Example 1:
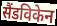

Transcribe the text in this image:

सैंडविकेन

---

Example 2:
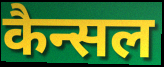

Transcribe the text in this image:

कैन्सल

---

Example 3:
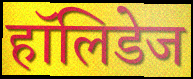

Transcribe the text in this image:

हॉलिडेज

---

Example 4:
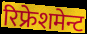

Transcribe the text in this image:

रिफ्रेशमेन्ट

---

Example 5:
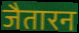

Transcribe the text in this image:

जैतारन